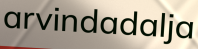
arvindadalja